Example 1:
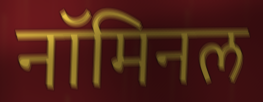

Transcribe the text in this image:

नॉमिनल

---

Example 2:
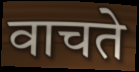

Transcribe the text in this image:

वाचते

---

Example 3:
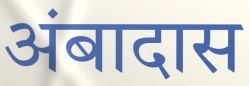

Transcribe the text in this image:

अंबादास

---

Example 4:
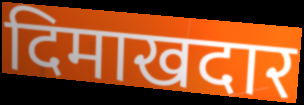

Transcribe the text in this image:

दिमाखदार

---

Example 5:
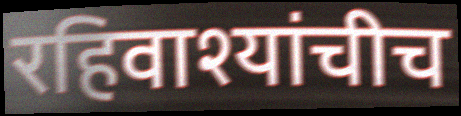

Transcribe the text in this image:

रहिवाश्यांचीच